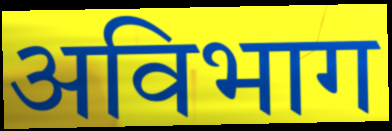
अविभाग